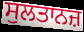
ਸੁਲਤਾਨਜ਼